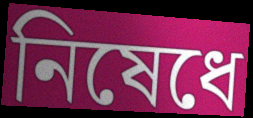
নিষেধে